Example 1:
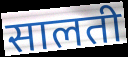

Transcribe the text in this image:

सालती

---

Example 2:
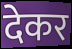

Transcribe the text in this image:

देकर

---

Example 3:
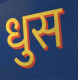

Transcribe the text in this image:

धुस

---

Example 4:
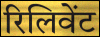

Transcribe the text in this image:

रिलिवेंट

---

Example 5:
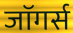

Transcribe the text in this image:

जॉगर्स